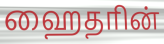
ஹைதரின்